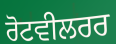
ਰੋਟਵੀਲਰਰ